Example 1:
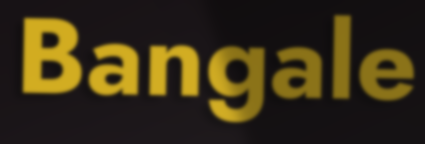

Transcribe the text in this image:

Bangale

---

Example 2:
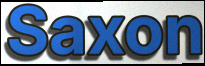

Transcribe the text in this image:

Saxon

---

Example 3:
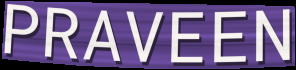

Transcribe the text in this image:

PRAVEEN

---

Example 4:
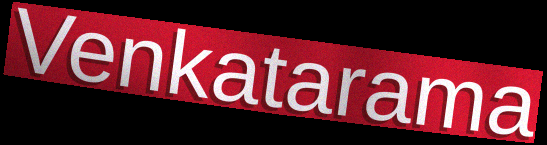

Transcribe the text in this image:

Venkatarama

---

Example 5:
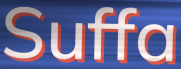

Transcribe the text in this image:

Suffa